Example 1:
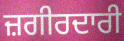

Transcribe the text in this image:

ਜ਼ਗੀਰਦਾਰੀ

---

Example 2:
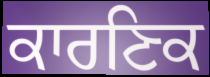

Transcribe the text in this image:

ਕਾਰਣਿਕ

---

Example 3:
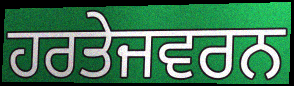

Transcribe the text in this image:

ਹਰਤੇਜਵਰਨ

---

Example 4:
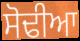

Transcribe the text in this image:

ਸੋਢੀਆ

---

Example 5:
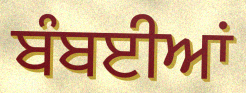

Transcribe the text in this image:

ਬੰਬਈਆਂ